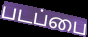
படப்பை